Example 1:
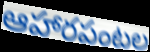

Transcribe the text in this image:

ఆహారపంటల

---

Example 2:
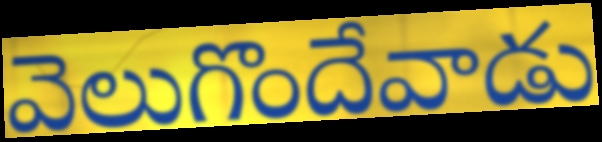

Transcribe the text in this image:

వెలుగొందేవాడు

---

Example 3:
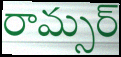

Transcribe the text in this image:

రామ్సర్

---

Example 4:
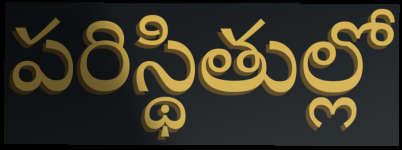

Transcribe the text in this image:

పరిస్థితుల్లో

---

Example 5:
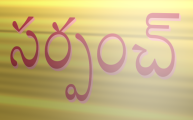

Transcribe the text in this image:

సర్పంచ్